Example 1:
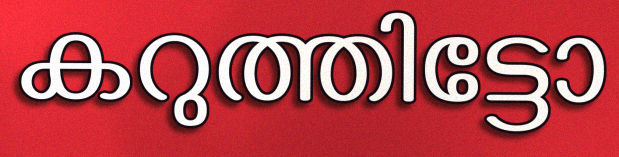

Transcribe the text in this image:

കറുത്തിട്ടോ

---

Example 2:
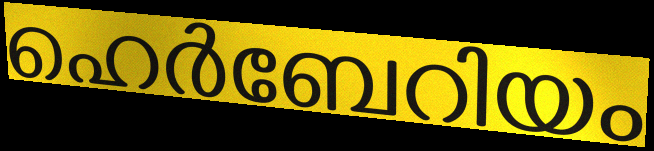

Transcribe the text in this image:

ഹെർബേറിയം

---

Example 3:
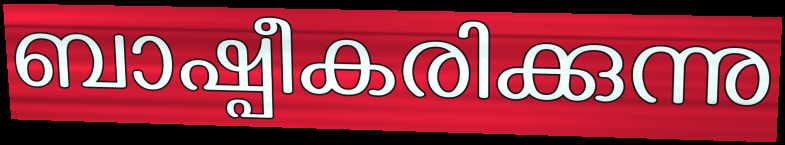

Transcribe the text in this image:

ബാഷ്പീകരിക്കുന്നു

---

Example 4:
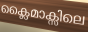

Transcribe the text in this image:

ക്ലൈമാക്സിലെ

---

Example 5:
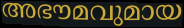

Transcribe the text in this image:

അഭൗമവുമായ